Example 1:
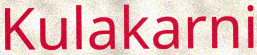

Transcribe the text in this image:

Kulakarni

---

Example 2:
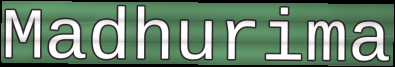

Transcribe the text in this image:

Madhurima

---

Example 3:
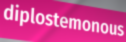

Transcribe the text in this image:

diplostemonous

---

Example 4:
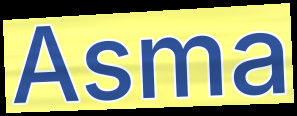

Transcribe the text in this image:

Asma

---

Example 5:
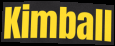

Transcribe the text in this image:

Kimball